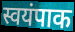
स्वयंपाक